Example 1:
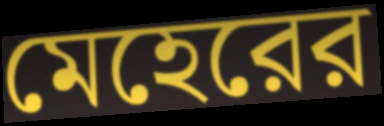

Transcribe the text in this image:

মেহেরের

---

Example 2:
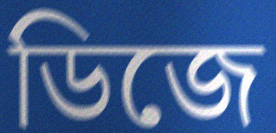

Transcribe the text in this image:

ডিজে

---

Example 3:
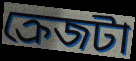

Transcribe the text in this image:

ক্রেজটা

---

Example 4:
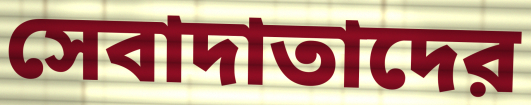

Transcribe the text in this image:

সেবাদাতাদের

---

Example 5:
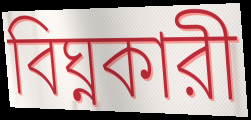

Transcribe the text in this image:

বিঘ্নকারী